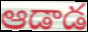
ఆడాడ